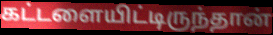
கட்டளையிட்டிருந்தான்